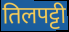
तिलपट्टी